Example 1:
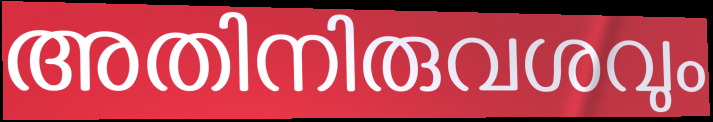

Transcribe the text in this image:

അതിനിരുവശവും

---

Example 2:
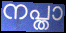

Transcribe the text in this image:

നപ്താ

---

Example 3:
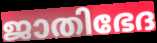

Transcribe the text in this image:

ജാതിഭേദ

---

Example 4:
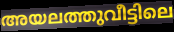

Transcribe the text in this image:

അയലത്തുവീട്ടിലെ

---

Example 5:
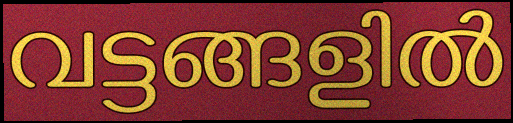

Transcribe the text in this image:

വട്ടങ്ങളിൽ